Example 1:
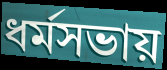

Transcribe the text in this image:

ধর্মসভায়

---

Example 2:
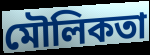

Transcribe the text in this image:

মৌলিকতা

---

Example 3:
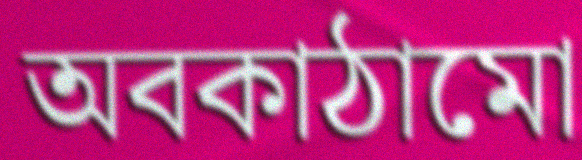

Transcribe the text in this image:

অবকাঠামো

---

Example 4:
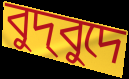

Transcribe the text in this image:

বুদ্‌বুদে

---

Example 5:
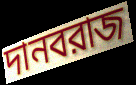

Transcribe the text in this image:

দানবরাজ